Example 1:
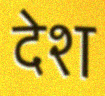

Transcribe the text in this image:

देश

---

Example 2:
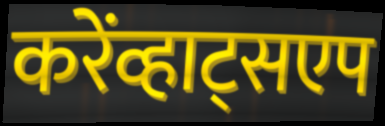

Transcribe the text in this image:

करेंव्हाट्सएप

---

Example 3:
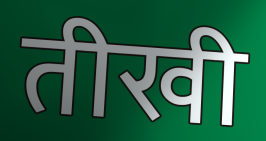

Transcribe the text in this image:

तीखी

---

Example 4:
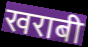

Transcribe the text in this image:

खराबी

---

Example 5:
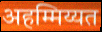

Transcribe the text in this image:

अहम्मिय्यत